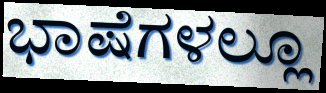
ಭಾಷೆಗಳಲ್ಲೂ